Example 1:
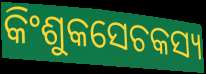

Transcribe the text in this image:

କିଂଶୁକସେଚକସ୍ୟ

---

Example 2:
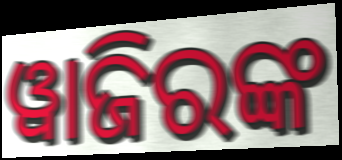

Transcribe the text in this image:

ୱାଜିରଙ୍କ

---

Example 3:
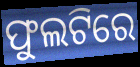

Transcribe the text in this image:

ଫୁଲଟିରେ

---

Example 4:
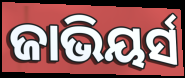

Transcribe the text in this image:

ଜାଭିୟର୍ସ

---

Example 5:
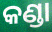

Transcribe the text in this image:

କଣ୍ଡା